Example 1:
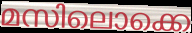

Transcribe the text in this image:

മസിലൊക്കെ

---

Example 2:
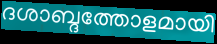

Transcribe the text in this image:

ദശാബ്ദത്തോളമായി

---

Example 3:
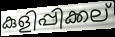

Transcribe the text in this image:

കുളിപ്പിക്കല്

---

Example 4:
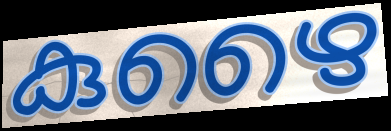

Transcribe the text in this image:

കുഴൈ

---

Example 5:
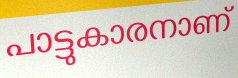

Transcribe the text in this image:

പാട്ടുകാരനാണ്